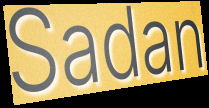
Sadan